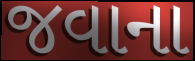
જવાના